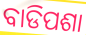
ବାଡିପଶା